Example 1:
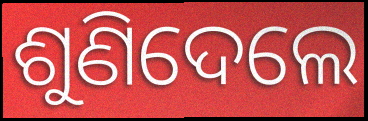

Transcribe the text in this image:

ଶୁଣିଦେଲେ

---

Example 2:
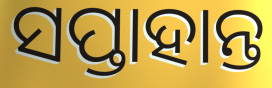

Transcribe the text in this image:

ସପ୍ତାହାନ୍ତ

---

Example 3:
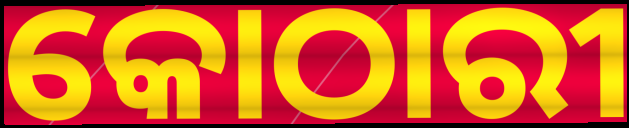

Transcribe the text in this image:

କୋଠାରୀ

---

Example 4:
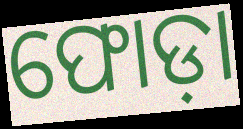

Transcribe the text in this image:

ଫୋଡ଼ା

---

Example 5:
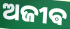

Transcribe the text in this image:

ଅଜୀଵ